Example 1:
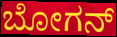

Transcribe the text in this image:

ಬೋಗನ್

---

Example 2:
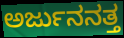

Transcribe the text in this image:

ಅರ್ಜುನನತ್ತ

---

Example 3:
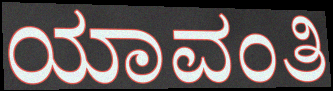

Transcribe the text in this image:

ಯಾವಂತಿ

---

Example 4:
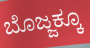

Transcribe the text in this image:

ಬೊಜ್ಜಕ್ಕೂ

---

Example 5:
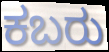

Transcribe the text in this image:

ಕಬರು